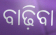
ବାଢ଼ିବା